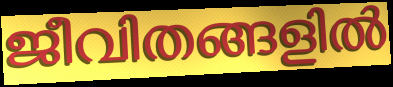
ജീവിതങ്ങളിൽ